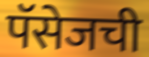
पॅसेजची